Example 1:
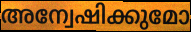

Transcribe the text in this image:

അന്വേഷിക്കുമോ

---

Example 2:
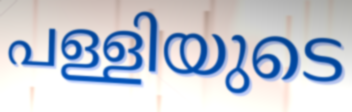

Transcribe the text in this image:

പള്ളിയുടെ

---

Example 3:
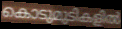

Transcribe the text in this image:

കൊടുമുടികളിൽ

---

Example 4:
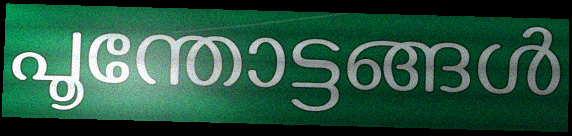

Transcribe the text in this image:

പൂന്തോട്ടങ്ങൾ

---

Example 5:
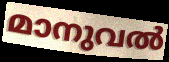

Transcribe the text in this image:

മാനുവൽ